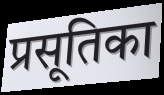
प्रसूतिका